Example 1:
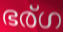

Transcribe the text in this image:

ഭര്ഗ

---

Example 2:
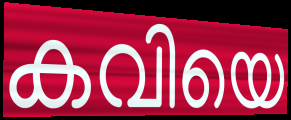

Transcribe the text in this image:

കവിയെ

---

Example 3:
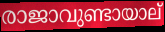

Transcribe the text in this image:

രാജാവുണ്ടായാല്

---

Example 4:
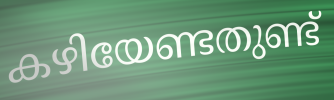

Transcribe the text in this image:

കഴിയേണ്ടതുണ്ട്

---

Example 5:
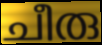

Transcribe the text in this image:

ചീരു